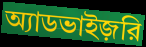
অ্যাডভাইজ়রি